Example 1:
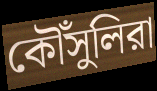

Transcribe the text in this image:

কৌঁসুলিরা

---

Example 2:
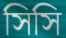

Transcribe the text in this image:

সিসি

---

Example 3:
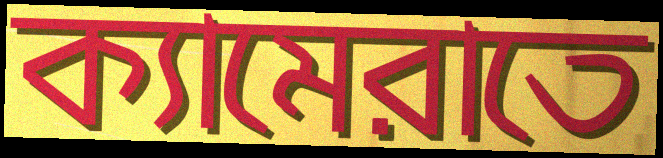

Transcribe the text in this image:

ক্যামেরাতে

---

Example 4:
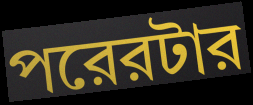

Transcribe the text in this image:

পরেরটার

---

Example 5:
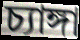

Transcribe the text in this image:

চ্যাঙ্গা